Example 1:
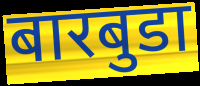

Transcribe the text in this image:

बारबुडा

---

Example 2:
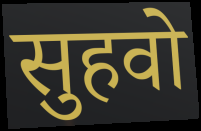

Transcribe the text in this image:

सुहवो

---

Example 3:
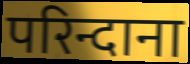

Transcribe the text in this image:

परिन्दाना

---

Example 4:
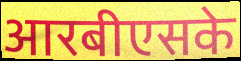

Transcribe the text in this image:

आरबीएसके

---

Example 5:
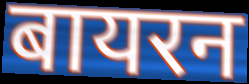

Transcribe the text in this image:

बायरन